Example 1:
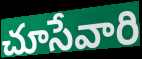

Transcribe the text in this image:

చూసేవారి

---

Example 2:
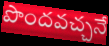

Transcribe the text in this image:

పొందవచ్చనే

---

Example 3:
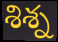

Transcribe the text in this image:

శిశ్న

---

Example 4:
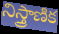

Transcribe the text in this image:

నిస్త్రాణిక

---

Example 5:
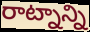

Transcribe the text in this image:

రాట్నాన్ని